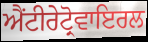
ਐਂਟੀਰੇਟ੍ਰੋਵਾਇਰਲ